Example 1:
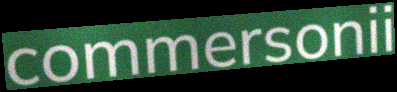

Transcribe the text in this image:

commersonii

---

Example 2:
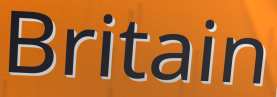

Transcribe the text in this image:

Britain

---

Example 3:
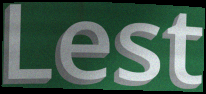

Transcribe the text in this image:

Lest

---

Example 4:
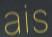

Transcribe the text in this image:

ais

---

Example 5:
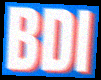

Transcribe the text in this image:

BDI